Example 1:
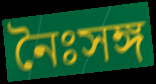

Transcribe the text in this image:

নৈঃসঙ্গ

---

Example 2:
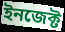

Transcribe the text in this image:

ইনজেক্ট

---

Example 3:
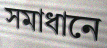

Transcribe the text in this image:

সমাধানে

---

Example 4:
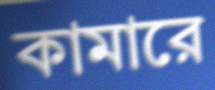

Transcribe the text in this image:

কামারে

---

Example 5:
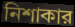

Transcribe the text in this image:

নিশাকার